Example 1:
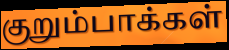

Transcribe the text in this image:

குறும்பாக்கள்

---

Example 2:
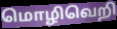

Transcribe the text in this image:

மொழிவெறி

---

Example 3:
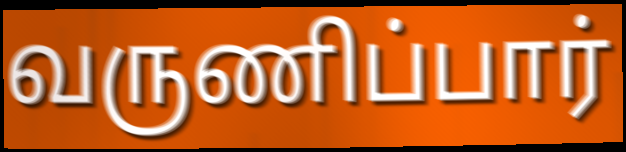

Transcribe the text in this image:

வருணிப்பார்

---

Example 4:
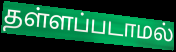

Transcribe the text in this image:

தள்ளப்படாமல்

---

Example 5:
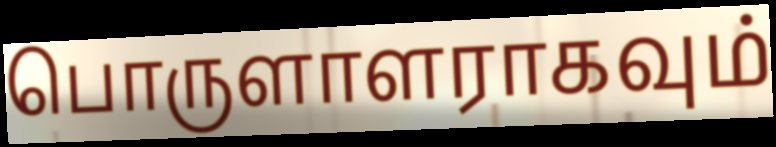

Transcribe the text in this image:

பொருளாளராகவும்